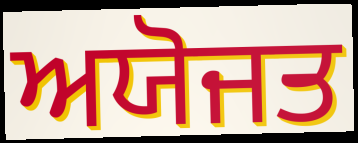
ਅਯੋਜਤ